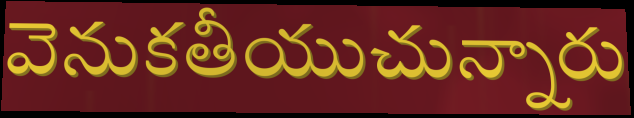
వెనుకతీయుచున్నారు